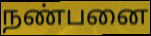
நண்பனை